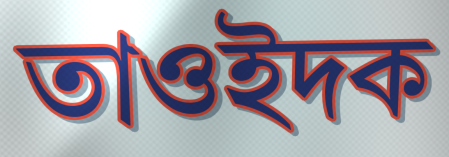
তাওইদক